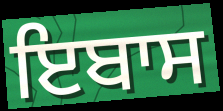
ਇਬਾਸ